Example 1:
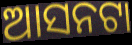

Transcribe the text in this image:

ଆସନଟା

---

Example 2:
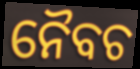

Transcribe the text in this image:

ନୈବଚ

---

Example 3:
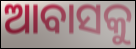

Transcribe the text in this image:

ଆବାସକୁ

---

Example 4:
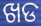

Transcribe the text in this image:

ଖଡ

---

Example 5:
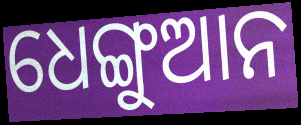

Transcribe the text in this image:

ଧେଙ୍ଗୁଆନ